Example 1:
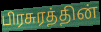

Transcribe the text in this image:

பிரசுரத்தின்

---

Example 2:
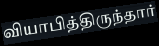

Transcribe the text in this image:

வியாபித்திருந்தார்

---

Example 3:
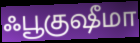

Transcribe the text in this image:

ஃபூகுஷீமா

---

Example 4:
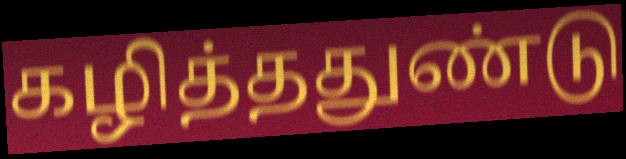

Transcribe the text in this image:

கழித்ததுண்டு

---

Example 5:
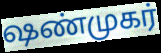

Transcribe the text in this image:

ஷண்முகர்